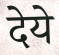
देये